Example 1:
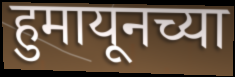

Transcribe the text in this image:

हुमायूनच्या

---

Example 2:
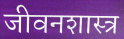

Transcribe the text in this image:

जीवनशास्त्र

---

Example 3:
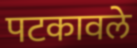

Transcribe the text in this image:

पटकावले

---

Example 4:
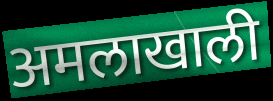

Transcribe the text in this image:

अमलाखाली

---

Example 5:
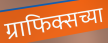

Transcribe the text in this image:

ग्राफिक्सच्या